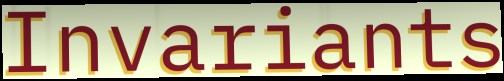
Invariants